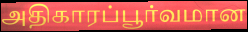
அதிகாரப்பூர்வமான